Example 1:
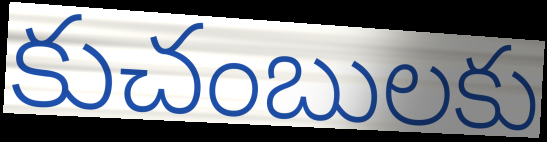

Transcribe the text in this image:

కుచంబులకు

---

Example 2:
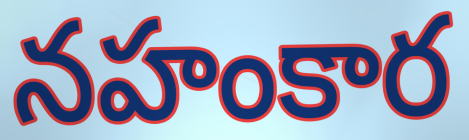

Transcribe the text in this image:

నహంకార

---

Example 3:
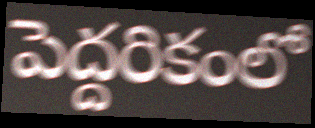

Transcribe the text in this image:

పెద్దరికంలో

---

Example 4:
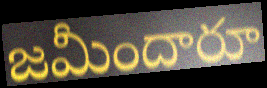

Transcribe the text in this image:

జమీందారూ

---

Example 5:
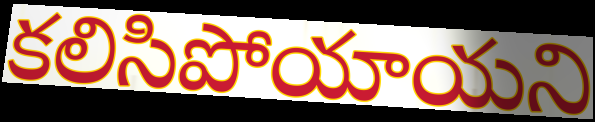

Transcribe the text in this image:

కలిసిపోయాయని